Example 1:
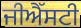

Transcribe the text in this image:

ਜੀਐੱਸਟੀ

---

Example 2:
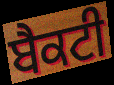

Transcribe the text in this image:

ਬੈਕਟੀ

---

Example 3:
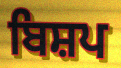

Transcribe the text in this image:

ਬਿਸ਼ਪ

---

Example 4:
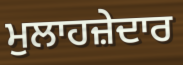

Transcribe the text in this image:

ਮੁਲਾਹਜ਼ੇਦਾਰ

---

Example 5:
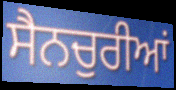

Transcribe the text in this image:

ਸੈਨਚੁਰੀਆਂ